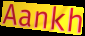
Aankh